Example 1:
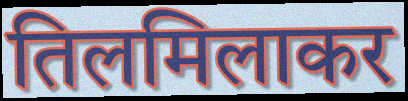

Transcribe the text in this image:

तिलमिलाकर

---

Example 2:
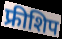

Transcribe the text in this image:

फ्रीशिप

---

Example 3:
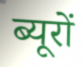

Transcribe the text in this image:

ब्यूरों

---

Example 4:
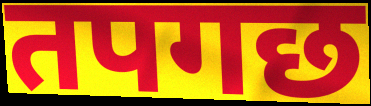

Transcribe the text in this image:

तपगछ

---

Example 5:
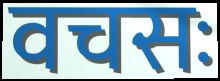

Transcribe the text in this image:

वचसः